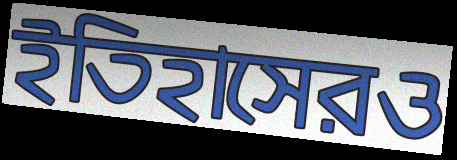
ইতিহাসেরও